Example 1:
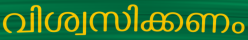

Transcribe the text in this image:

വിശ്വസിക്കണം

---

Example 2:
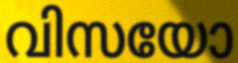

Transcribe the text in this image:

വിസയോ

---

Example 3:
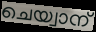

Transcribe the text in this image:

ചെയ്വാന്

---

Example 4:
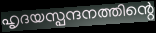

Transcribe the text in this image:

ഹൃദയസ്പന്ദനത്തിന്റെ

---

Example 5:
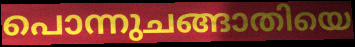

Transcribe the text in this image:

പൊന്നുചങ്ങാതിയെ